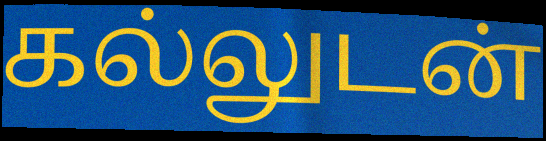
கல்லுடன்